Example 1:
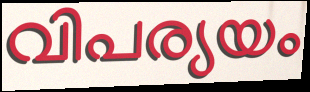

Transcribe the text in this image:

വിപര്യയം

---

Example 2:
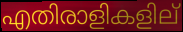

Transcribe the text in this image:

എതിരാളികളില്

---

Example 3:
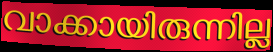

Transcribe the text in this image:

വാക്കായിരുന്നില്ല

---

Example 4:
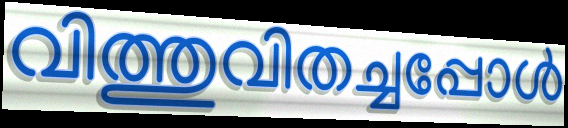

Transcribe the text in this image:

വിത്തുവിതച്ചപ്പോൾ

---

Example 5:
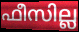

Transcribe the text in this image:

ഫീസില്ല